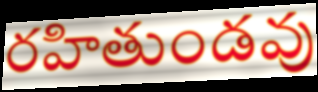
రహితుండవు